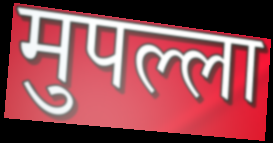
मुपल्ला